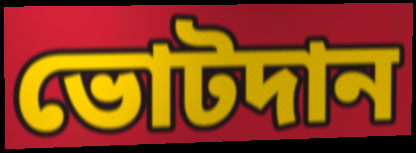
ভোটদান